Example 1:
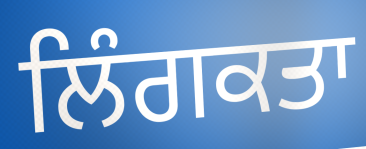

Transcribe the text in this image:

ਲਿੰਗਕਤਾ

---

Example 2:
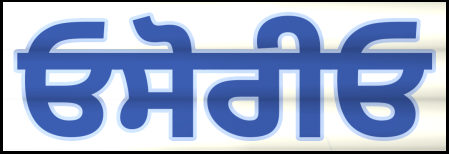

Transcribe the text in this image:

ਓਸੋਰੀਓ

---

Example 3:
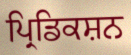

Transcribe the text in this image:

ਪ੍ਰਿਡਿਕਸ਼ਨ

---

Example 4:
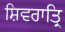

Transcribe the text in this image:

ਸ਼ਿਵਰਾਤ੍ਰਿ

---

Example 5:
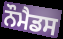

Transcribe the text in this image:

ਨੌਮੈਡਸ